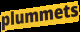
plummets